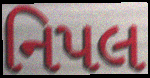
નિપલ